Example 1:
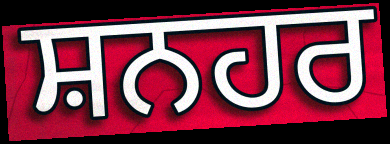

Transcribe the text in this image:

ਸ਼ਨਹਰ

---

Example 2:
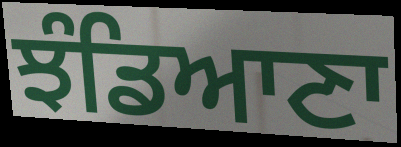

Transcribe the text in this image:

ਝੰਡਿਆਣਾ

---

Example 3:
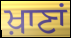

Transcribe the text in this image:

ਖ਼ਾਣਾਂ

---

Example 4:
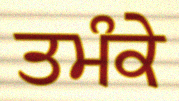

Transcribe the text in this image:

ਤਮੰਕੇ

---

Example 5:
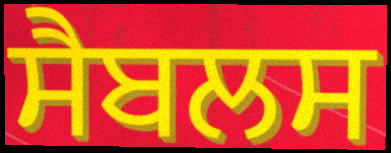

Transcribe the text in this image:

ਸੈਬਲਸ